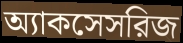
অ্যাকসেসরিজ